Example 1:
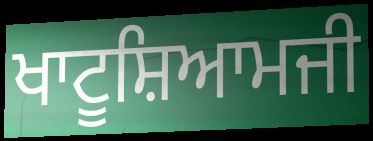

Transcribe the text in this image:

ਖਾਟੂਸ਼ਿਆਮਜੀ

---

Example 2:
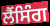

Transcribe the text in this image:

ਲੈਂਸਿੰਗ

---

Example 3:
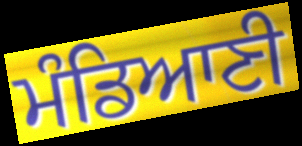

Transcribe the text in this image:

ਮੰਡਿਆਣੀ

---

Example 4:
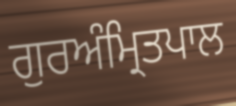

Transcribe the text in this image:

ਗੁਰਅੰਮ੍ਰਿਤਪਾਲ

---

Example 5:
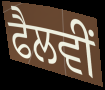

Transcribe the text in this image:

ਫੈਲਵੀਂ